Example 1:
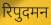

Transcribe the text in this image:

रिपुदमन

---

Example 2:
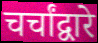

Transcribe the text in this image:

चर्चांद्वारे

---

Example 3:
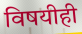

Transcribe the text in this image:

विषयीही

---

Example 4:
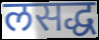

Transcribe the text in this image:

लसद्ध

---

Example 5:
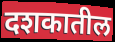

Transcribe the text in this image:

दशकातील